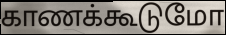
காணக்கூடுமோ